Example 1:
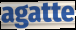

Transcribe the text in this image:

agatte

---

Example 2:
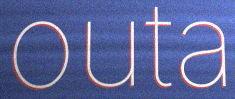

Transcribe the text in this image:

outa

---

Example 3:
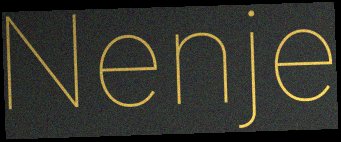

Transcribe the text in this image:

Nenje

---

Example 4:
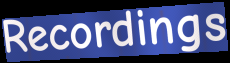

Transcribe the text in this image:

Recordings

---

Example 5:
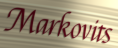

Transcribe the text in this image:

Markovits